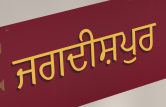
ਜਗਦੀਸ਼ਪੁਰ